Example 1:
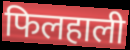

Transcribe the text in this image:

फिलहाली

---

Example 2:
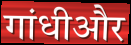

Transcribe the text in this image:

गांधीऔर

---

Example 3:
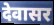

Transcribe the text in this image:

देवासर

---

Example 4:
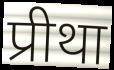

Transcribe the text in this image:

प्रीथा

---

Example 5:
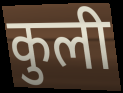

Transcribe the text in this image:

कुली